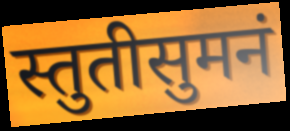
स्तुतीसुमनं